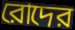
রোদের